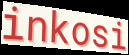
inkosi